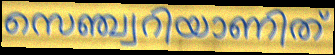
സെഞ്ച്വറിയാണിത്